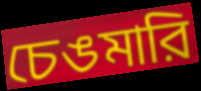
চেঙমারি